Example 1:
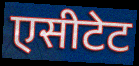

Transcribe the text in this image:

एसीटेट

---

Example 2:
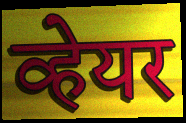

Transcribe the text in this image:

व्हेयर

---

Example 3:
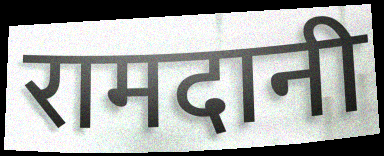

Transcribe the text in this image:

रामदानी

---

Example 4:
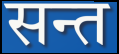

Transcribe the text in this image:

सन्‍त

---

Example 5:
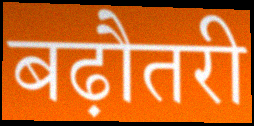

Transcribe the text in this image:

बढ़ौतरी